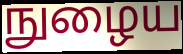
நுழைய